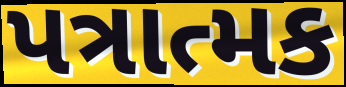
પત્રાત્મક